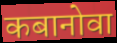
कबानोवा